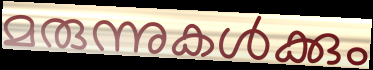
മരുന്നുകൾക്കും